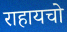
राहायचो